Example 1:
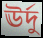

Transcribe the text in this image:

ঊর্দু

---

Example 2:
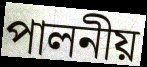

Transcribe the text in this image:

পালনীয়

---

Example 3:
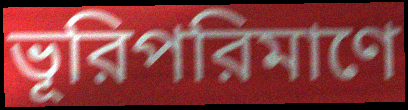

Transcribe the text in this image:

ভূরিপরিমাণে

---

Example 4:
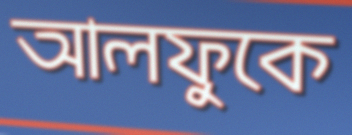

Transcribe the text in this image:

আলফুকে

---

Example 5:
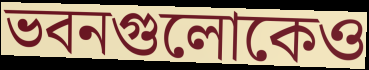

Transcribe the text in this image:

ভবনগুলোকেও